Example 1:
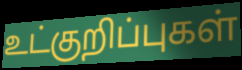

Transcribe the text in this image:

உட்குறிப்புகள்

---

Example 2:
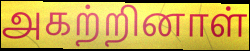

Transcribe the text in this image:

அகற்றினாள்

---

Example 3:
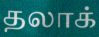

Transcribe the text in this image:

தலாக்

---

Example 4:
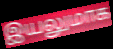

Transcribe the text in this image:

இயலுமாக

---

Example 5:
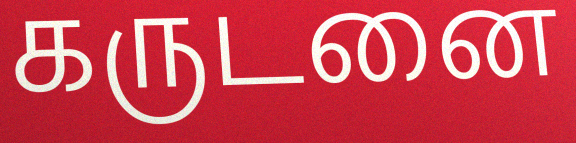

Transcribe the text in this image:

கருடனை